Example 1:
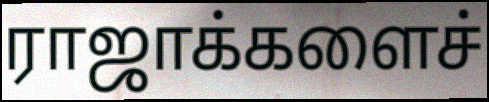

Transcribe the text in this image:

ராஜாக்களைச்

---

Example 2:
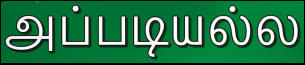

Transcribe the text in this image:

அப்படியல்ல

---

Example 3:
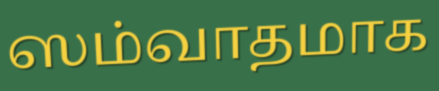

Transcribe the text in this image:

ஸம்வாதமாக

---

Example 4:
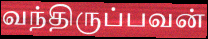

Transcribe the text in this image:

வந்திருப்பவன்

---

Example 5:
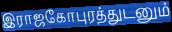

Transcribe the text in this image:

இராஜகோபுரத்துடனும்